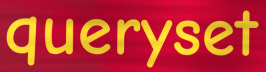
queryset